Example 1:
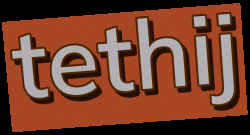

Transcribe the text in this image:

tethij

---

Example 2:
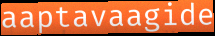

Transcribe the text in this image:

aaptavaagide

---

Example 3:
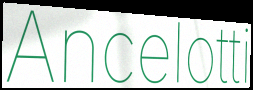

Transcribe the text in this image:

Ancelotti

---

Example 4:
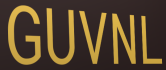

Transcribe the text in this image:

GUVNL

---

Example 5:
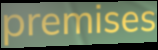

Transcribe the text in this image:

premises